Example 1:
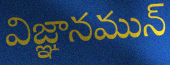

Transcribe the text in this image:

విజ్ఞానమున్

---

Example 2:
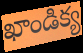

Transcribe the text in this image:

ఖాండిక్య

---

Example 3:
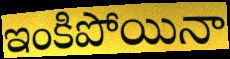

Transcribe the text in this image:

ఇంకిపోయినా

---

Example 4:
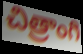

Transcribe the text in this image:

చిత్రాంగి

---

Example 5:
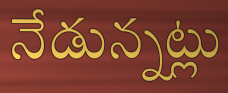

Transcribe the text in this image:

నేడున్నట్లు